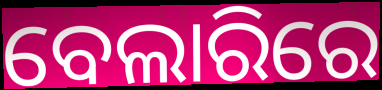
ବେଲାରିରେ